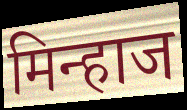
मिन्हाज